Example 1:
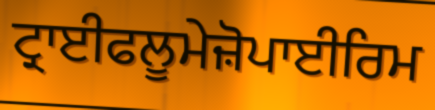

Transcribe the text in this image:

ਟ੍ਰਾਈਫਲੂਮੇਜ਼ੋਪਾਈਰਿਮ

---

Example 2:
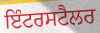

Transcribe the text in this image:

ਇੰਟਰਸਟੈਲਰ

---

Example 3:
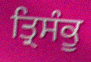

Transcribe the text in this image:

ਤ੍ਰਿਸੰਕੂ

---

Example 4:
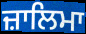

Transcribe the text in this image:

ਜ਼ਾਲਿਮਾ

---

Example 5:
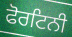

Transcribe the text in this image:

ਫੋਰਟਿਨੀ